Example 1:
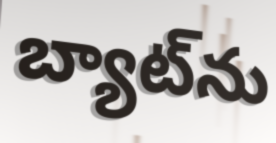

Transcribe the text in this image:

బ్యాట్‌ను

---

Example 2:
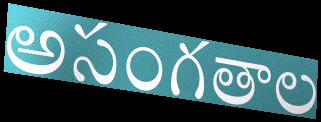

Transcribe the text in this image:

అసంగతాల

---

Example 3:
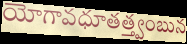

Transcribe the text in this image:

యోగావధూతత్త్వంబున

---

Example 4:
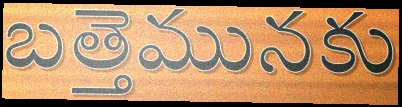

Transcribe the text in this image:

బత్తెమునకు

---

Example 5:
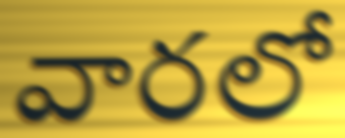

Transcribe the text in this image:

వారలో